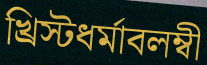
খ্রিস্টধর্মাবলম্বী